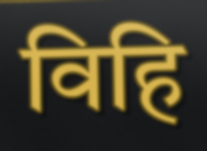
विहि